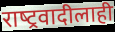
राष्ट्रवादीलाही